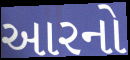
આરનો